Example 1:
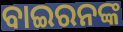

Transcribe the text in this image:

ବାଇରନଙ୍କ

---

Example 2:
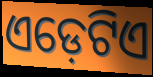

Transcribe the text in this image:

ଏଡ଼େଟିଏ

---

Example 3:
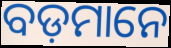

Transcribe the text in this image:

ବଡ଼ମାନେ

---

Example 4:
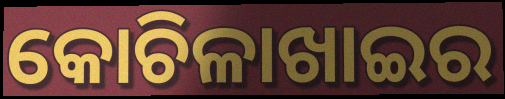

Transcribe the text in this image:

କୋଚିଳାଖାଇର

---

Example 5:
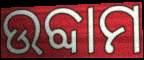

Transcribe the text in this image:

ଉବ୍ଦାମ